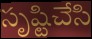
సృష్టిచేసి